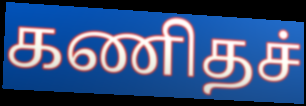
கணிதச்